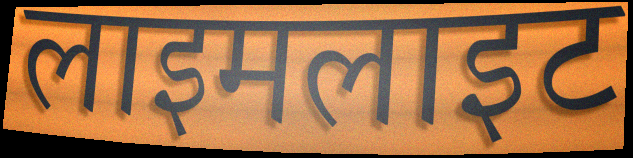
लाइमलाइट